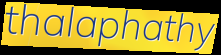
thalaphathy